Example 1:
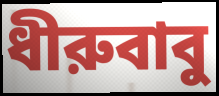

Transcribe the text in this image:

ধীরুবাবু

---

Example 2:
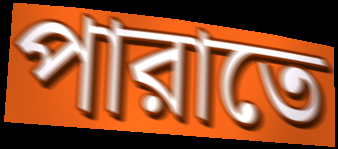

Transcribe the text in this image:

পারাতে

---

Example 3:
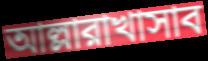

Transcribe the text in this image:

আল্লারাখাসাব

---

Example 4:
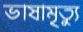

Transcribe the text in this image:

ভাষামৃত্যু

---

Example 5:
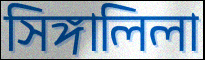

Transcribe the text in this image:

সিঙ্গালিলা